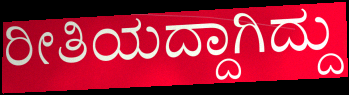
ರೀತಿಯದ್ದಾಗಿದ್ದು